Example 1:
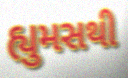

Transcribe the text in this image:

હ્યુમસથી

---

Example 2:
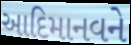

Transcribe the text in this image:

આદિમાનવને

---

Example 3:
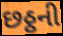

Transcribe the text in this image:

છઠ્ઠની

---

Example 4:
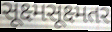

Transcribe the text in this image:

સૂક્ષ્મસૂક્ષ્મતર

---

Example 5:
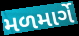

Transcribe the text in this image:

મળમાર્ગે